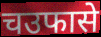
चउफासे